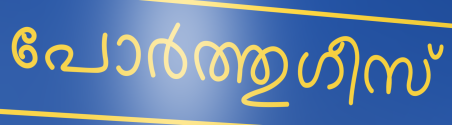
പോർത്തുഗീസ്